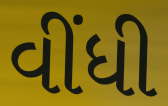
વીંધી